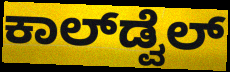
ಕಾಲ್‌ಡ್ವೆಲ್